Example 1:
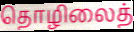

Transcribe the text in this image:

தொழிலைத்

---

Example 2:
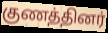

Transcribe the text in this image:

குணத்தினர்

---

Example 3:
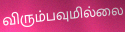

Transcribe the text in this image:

விரும்பவுமில்லை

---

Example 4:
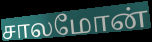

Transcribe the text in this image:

சாலமோன்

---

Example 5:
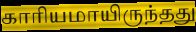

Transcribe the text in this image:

காரியமாயிருந்தது